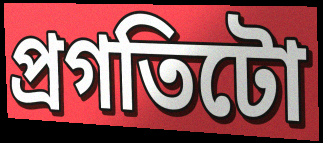
প্ৰগতিটো